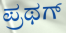
ಪ್ರಥಗ್